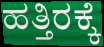
ಹತ್ತಿರಕ್ಕೆ